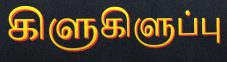
கிளுகிளுப்பு